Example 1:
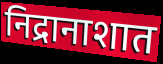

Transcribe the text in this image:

निद्रानाशात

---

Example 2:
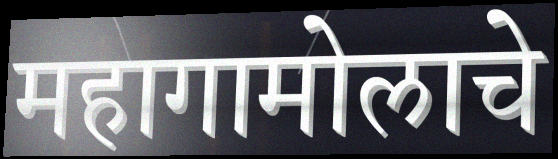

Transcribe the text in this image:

महागामोलाचे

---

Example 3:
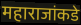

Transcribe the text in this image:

महाराजांकडे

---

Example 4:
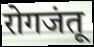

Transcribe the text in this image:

रोगजंतू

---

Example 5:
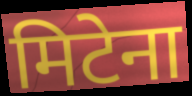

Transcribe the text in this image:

मिटेना